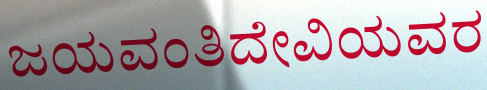
ಜಯವಂತಿದೇವಿಯವರ